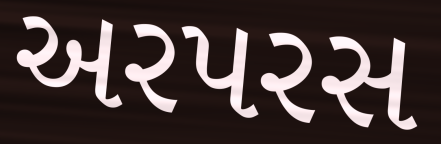
અરપરસ